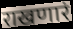
राखणारं